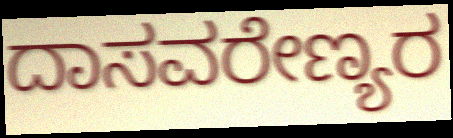
ದಾಸವರೇಣ್ಯರ